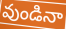
వుండినా